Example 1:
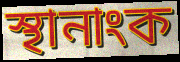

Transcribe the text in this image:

স্থানাংক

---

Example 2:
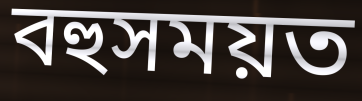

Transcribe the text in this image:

বহুসময়ত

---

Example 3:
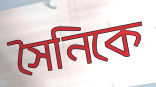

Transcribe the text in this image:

সৈনিকে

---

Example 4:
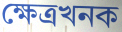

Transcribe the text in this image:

ক্ষেত্ৰখনক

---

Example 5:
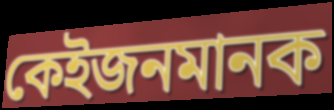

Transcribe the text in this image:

কেইজনমানক